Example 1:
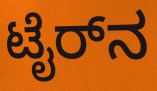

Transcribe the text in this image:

ಟೈರ್‌ನ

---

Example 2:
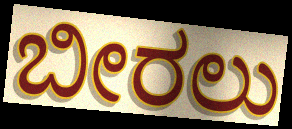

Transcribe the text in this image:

ಬೀರಲು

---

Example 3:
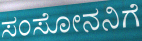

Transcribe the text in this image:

ಸಂಸೋನನಿಗೆ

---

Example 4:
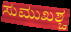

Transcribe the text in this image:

ಸುಮುಖಶ್ಚ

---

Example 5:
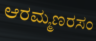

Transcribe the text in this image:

ಆರಮ್ಮಣರಸಂ